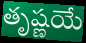
తృష్ణయే